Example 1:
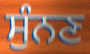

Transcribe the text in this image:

ਸੁੰਨਣ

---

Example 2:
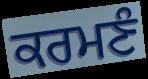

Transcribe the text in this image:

ਕਰਮਣੰ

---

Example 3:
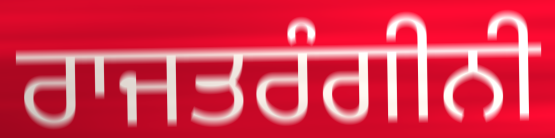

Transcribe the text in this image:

ਰਾਜਤਰੰਗੀਨੀ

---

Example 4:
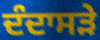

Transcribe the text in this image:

ਦੰਦਾਸੜੇ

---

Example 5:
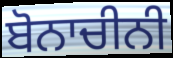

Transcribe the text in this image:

ਬੋਨਾਚੀਨੀ